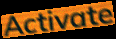
Activate